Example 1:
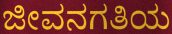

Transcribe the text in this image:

ಜೀವನಗತಿಯ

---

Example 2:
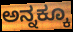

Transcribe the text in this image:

ಅನ್ನಕ್ಕೂ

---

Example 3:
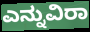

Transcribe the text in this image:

ಎನ್ನುವಿರಾ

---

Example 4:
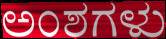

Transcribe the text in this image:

ಅಂಶಗಳು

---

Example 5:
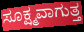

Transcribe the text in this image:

ಸೂಕ್ಷ್ಮವಾಗುತ್ತ